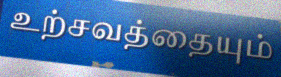
உற்சவத்தையும்